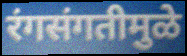
रंगसंगतीमुळे